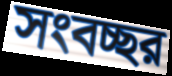
সংবচ্ছর